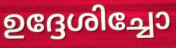
ഉദ്ദേശിച്ചോ